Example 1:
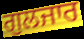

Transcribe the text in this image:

ਗੁਲਜਾਰ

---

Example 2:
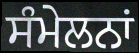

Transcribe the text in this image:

ਸੰਮੇਲਨਾਂ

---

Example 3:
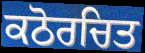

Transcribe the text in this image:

ਕਠੋਰਚਿਤ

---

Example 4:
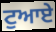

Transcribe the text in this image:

ਟੁਆਏ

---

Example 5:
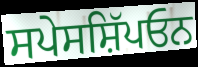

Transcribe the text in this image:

ਸਪੇਸਸ਼ਿੱਪਓਨ